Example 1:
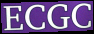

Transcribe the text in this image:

ECGC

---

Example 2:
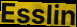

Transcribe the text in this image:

Esslin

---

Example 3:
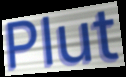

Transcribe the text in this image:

Plut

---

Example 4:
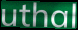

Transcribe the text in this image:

uthal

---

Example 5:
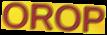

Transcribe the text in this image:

OROP